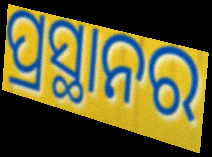
ପ୍ରସ୍ଥାନର